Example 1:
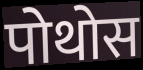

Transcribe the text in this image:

पोथोस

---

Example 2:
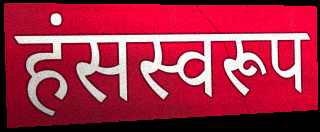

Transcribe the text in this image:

हंसस्वरूप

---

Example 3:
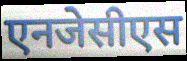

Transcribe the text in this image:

एनजेसीएस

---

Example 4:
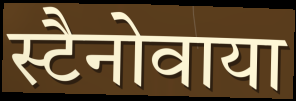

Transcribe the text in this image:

स्टैनोवाया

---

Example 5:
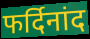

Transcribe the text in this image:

फर्दिनांद